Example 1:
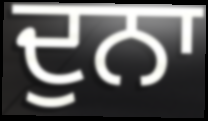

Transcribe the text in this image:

ਦੁਨਾ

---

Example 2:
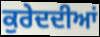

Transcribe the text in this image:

ਕੁਰੇਦਦੀਆਂ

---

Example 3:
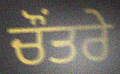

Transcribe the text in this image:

ਚੌਂਤਰੇ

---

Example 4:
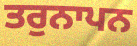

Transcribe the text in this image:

ਤਰੁਨਾਪਨ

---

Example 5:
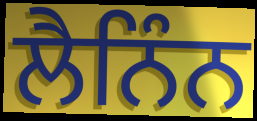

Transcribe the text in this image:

ਲੈਨਿੰਨ